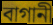
বাগানী